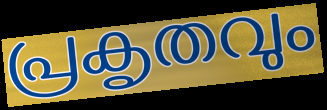
പ്രകൃതവും